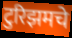
टुरिझमचे